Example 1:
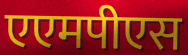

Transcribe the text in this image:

एएमपीएस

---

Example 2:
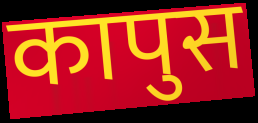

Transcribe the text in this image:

कापुस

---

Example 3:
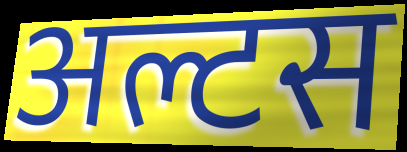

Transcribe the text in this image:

अल्टस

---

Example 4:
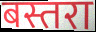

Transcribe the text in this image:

बस्तरा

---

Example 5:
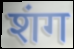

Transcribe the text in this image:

शंग